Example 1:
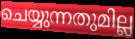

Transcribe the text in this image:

ചെയ്യുന്നതുമില്ല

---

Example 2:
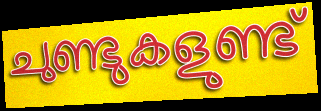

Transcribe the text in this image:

ചുണ്ടുകളുണ്ട്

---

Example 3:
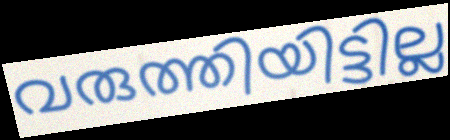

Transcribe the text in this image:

വരുത്തിയിട്ടില്ല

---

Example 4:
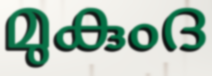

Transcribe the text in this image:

മുകുംദ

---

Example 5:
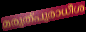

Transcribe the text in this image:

മരുത്പുരാധീശ